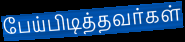
பேய்பிடித்தவர்கள்